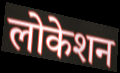
लोकेशन